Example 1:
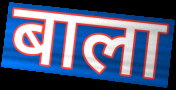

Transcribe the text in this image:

बाला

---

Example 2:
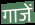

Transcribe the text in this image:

गाजें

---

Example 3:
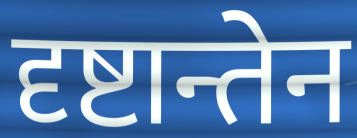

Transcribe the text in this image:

दृष्टान्तेन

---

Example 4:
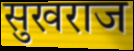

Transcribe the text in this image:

सुखराज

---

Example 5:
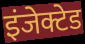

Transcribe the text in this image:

इंजेक्टेड